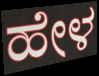
ಹೇಳ